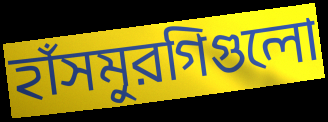
হাঁসমুরগিগুলো